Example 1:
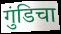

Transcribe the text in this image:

गुंडिचा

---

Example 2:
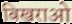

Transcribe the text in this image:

बिखराओ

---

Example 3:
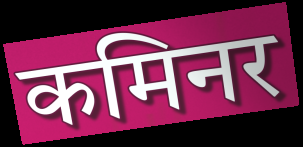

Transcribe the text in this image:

कमिनर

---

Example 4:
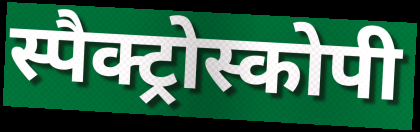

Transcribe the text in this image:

स्पैक्ट्रोस्कोपी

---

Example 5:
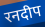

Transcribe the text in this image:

रनदीप